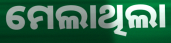
ମେଲାଥିଲା